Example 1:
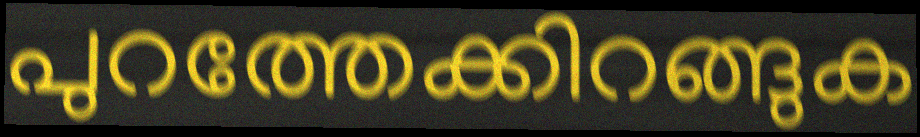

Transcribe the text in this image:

പുറത്തേക്കിറങ്ങുക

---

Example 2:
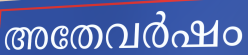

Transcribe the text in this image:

അതേവർഷം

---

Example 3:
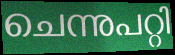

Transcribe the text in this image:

ചെന്നുപറ്റി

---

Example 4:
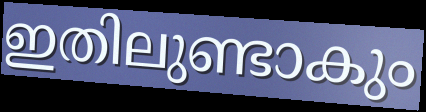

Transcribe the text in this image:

ഇതിലുണ്ടാകും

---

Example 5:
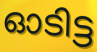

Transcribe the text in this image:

ഓടിട്ട